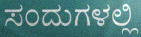
ಸಂದುಗಳಲ್ಲಿ